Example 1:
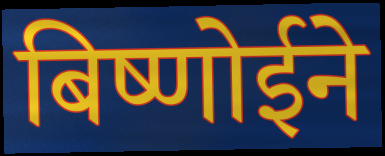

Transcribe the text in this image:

बिष्णोईने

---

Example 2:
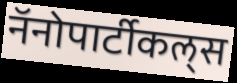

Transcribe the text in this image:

नॅनोपार्टीकल्स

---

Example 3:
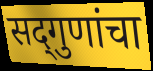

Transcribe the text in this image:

सद्‍गुणांचा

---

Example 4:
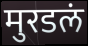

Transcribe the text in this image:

मुरडलं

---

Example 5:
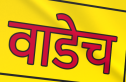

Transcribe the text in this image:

वाडेच